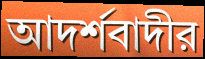
আদর্শবাদীর